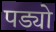
पड्यो